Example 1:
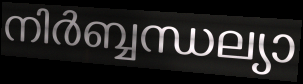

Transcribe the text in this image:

നിർബ്ബന്ധല്യാ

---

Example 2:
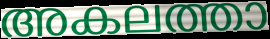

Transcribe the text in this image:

അകലത്താ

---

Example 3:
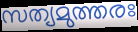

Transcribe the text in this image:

സത്യമുത്തരഃ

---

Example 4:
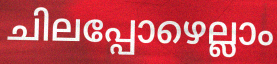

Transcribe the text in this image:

ചിലപ്പോഴെല്ലാം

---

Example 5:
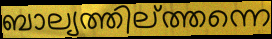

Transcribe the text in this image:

ബാല്യത്തില്ത്തന്നെ